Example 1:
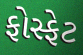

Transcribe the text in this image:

ફોસ્ફેટ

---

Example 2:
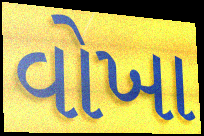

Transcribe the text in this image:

વોખા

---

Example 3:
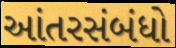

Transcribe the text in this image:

આંતરસંબંધો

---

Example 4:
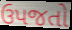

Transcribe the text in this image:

ઉપજતો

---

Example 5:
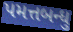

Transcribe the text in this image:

પમત્તબન્ધુ